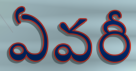
ఏవరీ